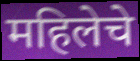
महिलेचे